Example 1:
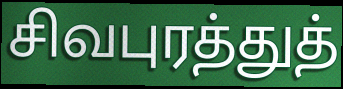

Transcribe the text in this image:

சிவபுரத்துத்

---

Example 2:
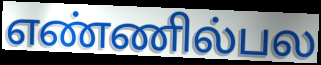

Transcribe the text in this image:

எண்ணில்பல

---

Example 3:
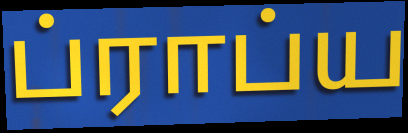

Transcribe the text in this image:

ப்ராப்ய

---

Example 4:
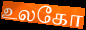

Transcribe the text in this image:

உலகோ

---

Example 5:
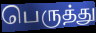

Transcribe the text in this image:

பெருத்து